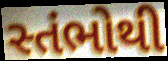
સ્તંભોથી